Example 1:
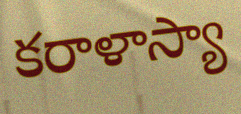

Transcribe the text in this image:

కరాళాస్యా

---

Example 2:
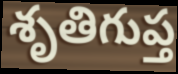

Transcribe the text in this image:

శృతిగుప్త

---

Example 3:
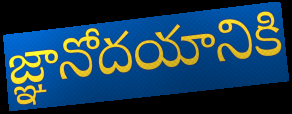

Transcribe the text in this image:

జ్ఞానోదయానికి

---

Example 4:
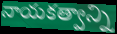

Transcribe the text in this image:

నాయకత్వాన్ని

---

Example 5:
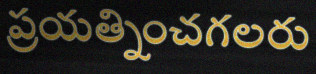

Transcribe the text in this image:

ప్రయత్నించగలరు